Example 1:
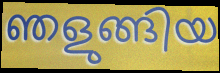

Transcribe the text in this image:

ഞളുങ്ങിയ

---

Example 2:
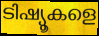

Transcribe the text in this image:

ടിഷ്യൂകളെ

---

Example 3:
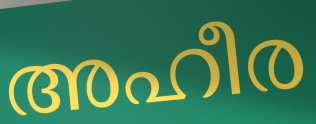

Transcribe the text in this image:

അഹീര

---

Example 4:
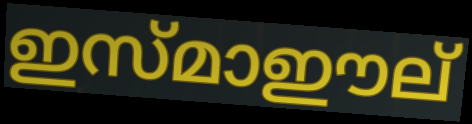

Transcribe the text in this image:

ഇസ്മാഈല്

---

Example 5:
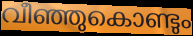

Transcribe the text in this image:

വീഞ്ഞുകൊണ്ടും